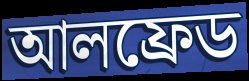
আলফ্ৰেড